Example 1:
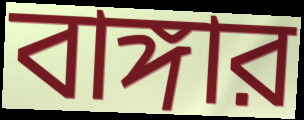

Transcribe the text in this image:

বাঙ্গার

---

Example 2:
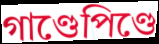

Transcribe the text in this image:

গাণ্ডেপিণ্ডে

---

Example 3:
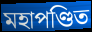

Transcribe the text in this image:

মহাপণ্ডিত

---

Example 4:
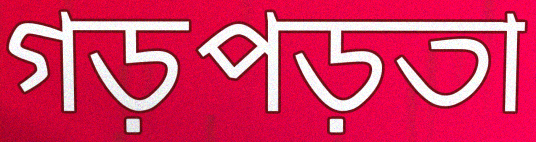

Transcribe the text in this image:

গড়পড়তা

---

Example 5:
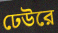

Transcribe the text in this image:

ঢেউরে